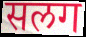
सलग